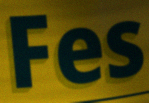
Fes